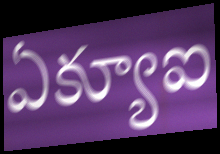
ఏక్యూఐ